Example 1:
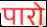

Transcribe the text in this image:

पारो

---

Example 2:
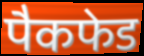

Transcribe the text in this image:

पैकफेड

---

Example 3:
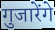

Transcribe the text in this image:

गुजारेंगे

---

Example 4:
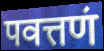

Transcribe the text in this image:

पवत्तणं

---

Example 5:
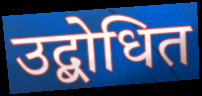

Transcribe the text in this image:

उद्बोधित